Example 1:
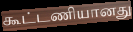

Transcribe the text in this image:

கூட்டணியானது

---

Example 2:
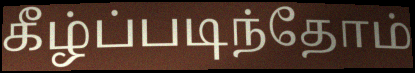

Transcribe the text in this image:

கீழ்ப்படிந்தோம்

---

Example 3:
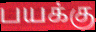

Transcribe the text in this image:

பயக்கு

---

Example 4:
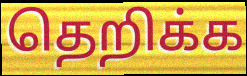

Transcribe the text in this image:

தெறிக்க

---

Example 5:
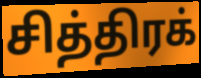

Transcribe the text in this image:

சித்திரக்